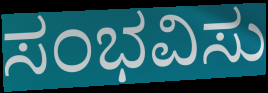
ಸಂಭವಿಸು